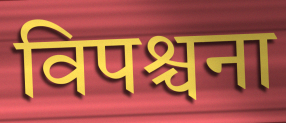
विपश्चना